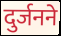
दुर्जनने